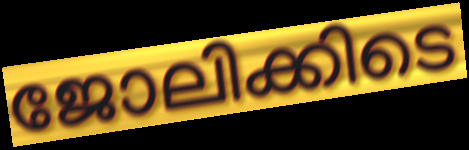
ജോലിക്കിടെ